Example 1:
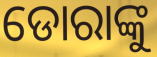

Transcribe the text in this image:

ଡୋରାଙ୍କୁ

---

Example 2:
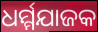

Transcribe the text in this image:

ଧର୍ମ୍ମଯାଜକ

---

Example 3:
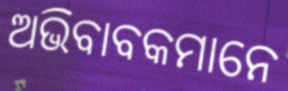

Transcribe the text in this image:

ଅଭିବାବକମାନେ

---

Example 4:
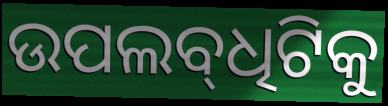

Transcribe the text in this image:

ଉପଲବ୍‌ଧିଟିକୁ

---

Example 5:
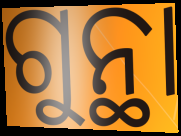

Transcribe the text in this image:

ଗୁନ୍ଥା